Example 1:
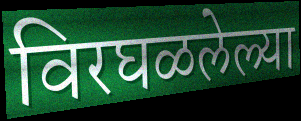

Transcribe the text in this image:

विरघळलेल्या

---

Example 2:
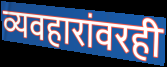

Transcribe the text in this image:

व्यवहारांवरही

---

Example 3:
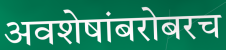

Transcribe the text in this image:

अवशेषांबरोबरच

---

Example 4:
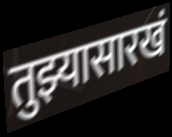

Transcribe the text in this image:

तुझ्यासारखं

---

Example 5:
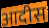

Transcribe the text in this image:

आदीस